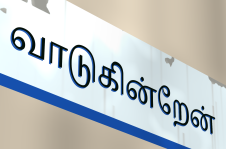
வாடுகின்றேன்